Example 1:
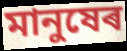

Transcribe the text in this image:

মানুষেৰ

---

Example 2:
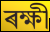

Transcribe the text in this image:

ৰক্ষী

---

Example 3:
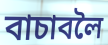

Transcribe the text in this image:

বাচাবলৈ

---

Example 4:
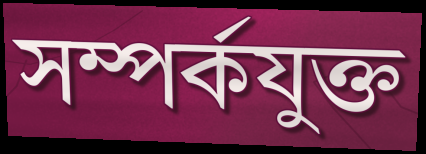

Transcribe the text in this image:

সম্পৰ্কযুক্ত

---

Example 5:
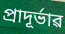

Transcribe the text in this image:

প্ৰাদূৰ্ভাৱ